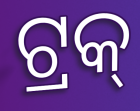
ଟ୍ରକ୍